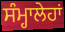
ਸੰਮ੍ਹ੍ਹਾਲੇਹਾਂ